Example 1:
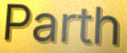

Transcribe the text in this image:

Parth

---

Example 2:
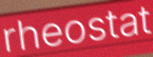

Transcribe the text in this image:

rheostat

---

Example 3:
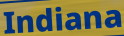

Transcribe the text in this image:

Indiana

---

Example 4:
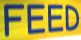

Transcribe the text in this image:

FEED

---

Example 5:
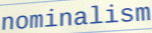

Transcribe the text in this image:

nominalism